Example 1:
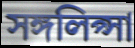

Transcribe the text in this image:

সঙ্গলিপ্সা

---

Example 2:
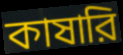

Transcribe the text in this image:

কাষারি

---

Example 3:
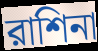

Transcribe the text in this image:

রাশিনা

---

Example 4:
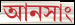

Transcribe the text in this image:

আনসাং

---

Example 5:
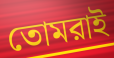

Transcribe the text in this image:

তোমরাই